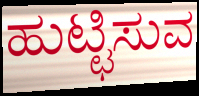
ಹುಟ್ಟಿಸುವ